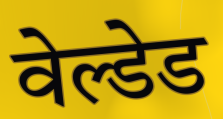
वेल्डेड